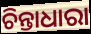
ଚିନ୍ତାଧାରା